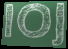
IOJ